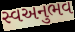
સ્વઅનુભવ